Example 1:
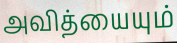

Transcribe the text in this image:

அவித்யையும்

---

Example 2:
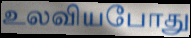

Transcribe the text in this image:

உலவியபோது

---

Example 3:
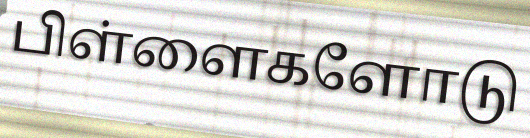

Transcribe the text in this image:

பிள்ளைகளோடு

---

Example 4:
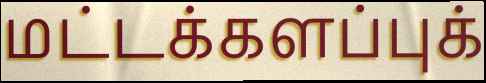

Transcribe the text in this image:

மட்டக்களப்புக்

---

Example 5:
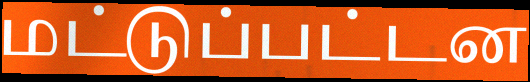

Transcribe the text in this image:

மட்டுப்பட்டன